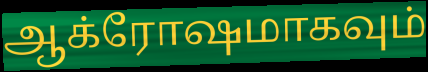
ஆக்ரோஷமாகவும்